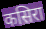
कसिरा